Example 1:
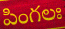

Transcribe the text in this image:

పింగలః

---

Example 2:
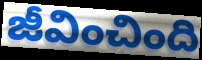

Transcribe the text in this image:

జీవించింది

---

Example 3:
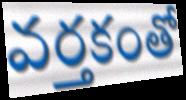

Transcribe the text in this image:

వర్తకంతో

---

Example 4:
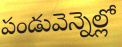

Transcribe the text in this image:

పండువెన్నెల్లో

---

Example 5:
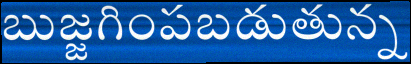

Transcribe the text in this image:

బుజ్జగింపబడుతున్న